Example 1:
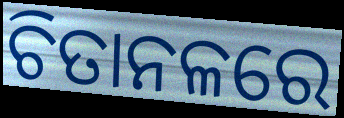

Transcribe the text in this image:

ଚିତାନଳରେ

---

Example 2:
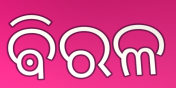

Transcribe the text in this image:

ଵିରଳ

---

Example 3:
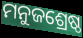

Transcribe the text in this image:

ମନୁଜଶ୍ରେଷ୍ଠ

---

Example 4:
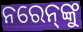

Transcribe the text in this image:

ନରେନ୍‌ଙ୍କୁ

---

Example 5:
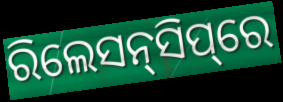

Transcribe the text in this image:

ରିଲେସନ୍‌ସିପ୍‌ରେ